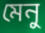
মেনু